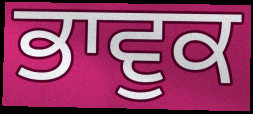
ਭਾਵੁਕ